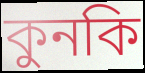
কুনকি